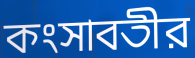
কংসাবতীর